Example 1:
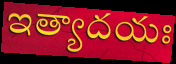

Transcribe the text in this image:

ఇత్యాదయః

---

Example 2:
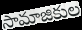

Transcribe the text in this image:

సామాజికుల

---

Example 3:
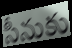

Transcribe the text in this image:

సీనుకు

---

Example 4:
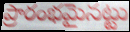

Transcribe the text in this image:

ప్రారంభమైనట్టు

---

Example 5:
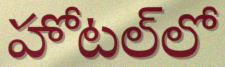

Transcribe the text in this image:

హోటల్‌లో